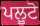
ਪਲੂਟੋ